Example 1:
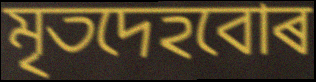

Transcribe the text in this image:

মৃতদেহবোৰ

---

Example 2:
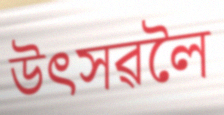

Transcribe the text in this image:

উৎসৱলৈ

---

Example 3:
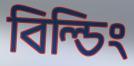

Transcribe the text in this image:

বিল্ডিং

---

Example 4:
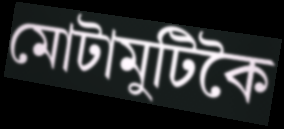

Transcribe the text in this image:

মোটামুটিকৈ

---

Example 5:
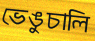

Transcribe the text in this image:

ভেঙুচালি